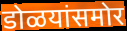
डोळयांसमोर